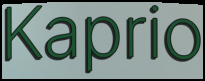
Kaprio